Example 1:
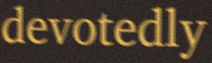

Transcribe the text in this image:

devotedly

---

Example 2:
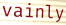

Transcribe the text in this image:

vainly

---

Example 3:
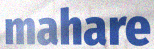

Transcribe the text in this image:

mahare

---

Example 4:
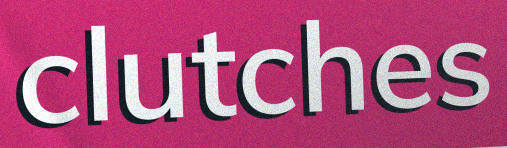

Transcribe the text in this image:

clutches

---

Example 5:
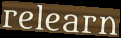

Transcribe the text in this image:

relearn